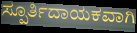
ಸ್ಪೂರ್ತಿದಾಯಕವಾಗಿ